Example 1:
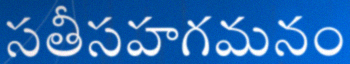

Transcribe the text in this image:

సతీసహగమనం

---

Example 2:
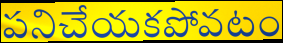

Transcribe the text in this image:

పనిచేయకపోవటం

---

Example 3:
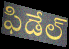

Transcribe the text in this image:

ఫిడేల్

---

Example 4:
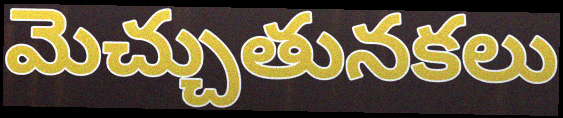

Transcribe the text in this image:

మెచ్చుతునకలు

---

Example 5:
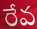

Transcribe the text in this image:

రేవ